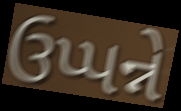
ઉપ્પન્ને